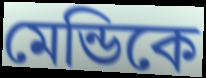
মেন্ডিকে